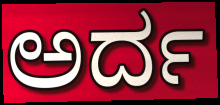
ಅರ್ದ